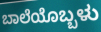
ಬಾಲೆಯೊಬ್ಬಳು